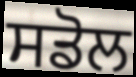
ਸਡੋਲ